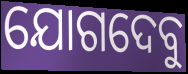
ଯୋଗଦେବୁ